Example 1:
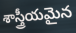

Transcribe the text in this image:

శాస్త్రీయమైన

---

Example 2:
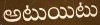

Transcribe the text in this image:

అటుయిటు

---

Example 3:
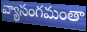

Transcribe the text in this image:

వ్యాసంగమంతా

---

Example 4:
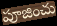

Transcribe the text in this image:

పూజించు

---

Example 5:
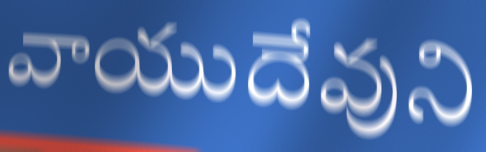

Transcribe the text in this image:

వాయుదేవుని